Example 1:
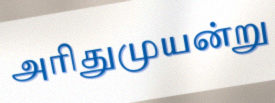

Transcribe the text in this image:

அரிதுமுயன்று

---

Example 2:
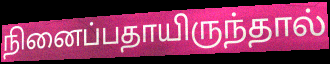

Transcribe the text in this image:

நினைப்பதாயிருந்தால்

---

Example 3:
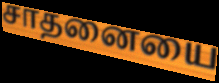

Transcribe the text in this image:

சாதனையை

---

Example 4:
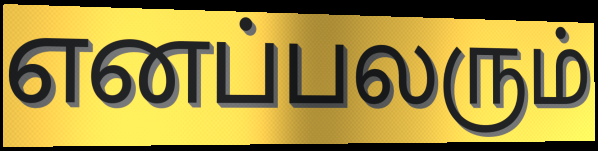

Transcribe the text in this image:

எனப்பலரும்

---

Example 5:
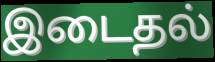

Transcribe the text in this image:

இடைதல்